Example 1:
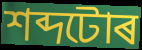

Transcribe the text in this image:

শব্দটোৰ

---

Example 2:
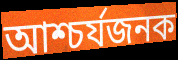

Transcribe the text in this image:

আশ্চৰ্যজনক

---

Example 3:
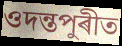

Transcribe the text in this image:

ওদন্তপুৰীত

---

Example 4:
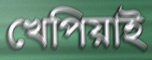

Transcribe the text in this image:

খেপিয়াই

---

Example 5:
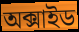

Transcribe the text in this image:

অক্সাইড